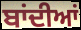
ਬਾਂਦੀਆਂ